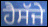
ਹੈਸੱਜੇ